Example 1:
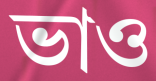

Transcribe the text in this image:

ভাও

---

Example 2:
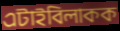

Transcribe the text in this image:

এটাইবিলাকক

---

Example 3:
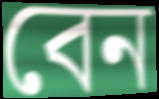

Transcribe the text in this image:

বেন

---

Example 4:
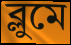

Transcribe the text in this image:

ব্লুমে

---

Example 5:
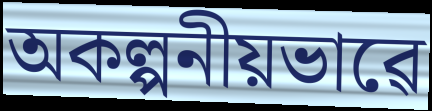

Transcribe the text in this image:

অকল্পনীয়ভাৱে